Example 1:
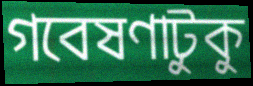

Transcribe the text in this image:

গবেষণাটুকু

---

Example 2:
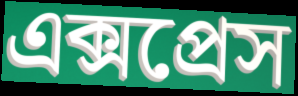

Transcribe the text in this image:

এক্সপ্রেস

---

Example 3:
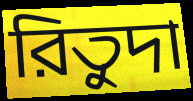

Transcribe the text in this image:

রিতুদা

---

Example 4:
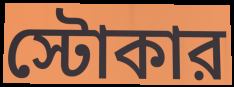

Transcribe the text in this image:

স্টোকার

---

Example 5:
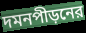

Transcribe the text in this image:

দমনপীড়নের